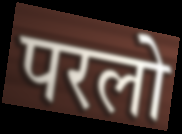
परलो